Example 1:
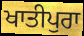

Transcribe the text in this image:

ਖਾਤੀਪੁਰਾ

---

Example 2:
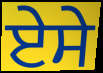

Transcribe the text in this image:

ਏਸੇ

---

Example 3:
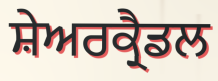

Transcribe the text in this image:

ਸ਼ੇਅਰਕ੍ਰੈਡਲ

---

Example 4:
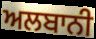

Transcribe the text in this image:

ਅਲਬਾਨੀ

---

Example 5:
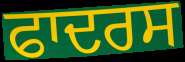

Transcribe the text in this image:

ਫਾਦਰਸ